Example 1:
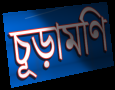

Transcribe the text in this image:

চূড়ামণি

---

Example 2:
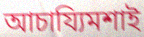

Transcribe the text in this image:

আচায্যিমশাই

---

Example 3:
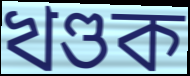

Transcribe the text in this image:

খণ্ডক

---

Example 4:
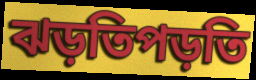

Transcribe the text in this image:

ঝড়তিপড়তি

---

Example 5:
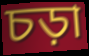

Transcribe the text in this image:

চড়া